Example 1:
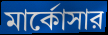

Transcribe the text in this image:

মার্কোসার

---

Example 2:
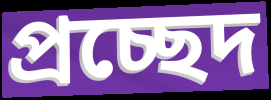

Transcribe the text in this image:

প্রচ্ছেদ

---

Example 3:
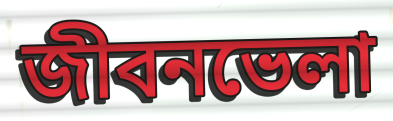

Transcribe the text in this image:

জীবনভেলা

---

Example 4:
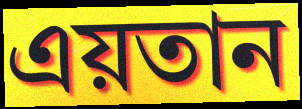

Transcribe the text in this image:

এয়তান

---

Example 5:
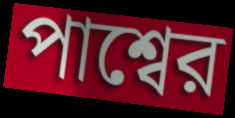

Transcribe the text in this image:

পাশ্বের